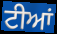
ਟੀਆਂ